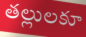
తల్లులకూ